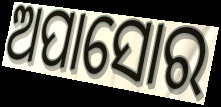
ଅପାସୋର